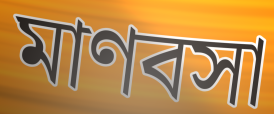
মাণবসা